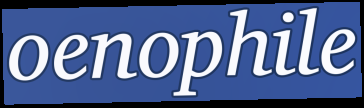
oenophile